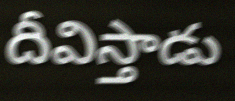
దీవిస్తాడు